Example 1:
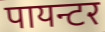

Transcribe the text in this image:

पायन्टर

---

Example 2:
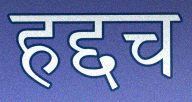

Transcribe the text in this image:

हद्दच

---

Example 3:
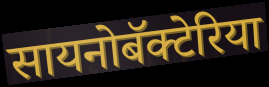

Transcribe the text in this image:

सायनोबॅक्टेरिया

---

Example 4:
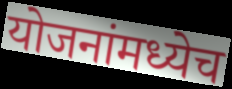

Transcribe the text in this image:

योजनांमध्येच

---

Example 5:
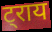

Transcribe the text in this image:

ट्राय